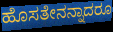
ಹೊಸತೇನನ್ನಾದರೂ